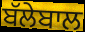
ਬੱਲੇਬਾਲ